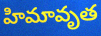
హిమావృత